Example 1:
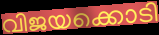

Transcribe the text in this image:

വിജയക്കൊടി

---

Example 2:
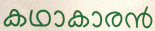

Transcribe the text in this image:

കഥാകാരൻ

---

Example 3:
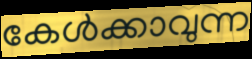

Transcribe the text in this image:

കേൾക്കാവുന്ന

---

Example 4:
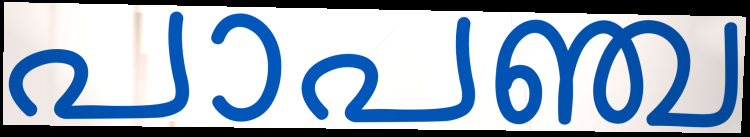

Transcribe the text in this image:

പാപഞ്ച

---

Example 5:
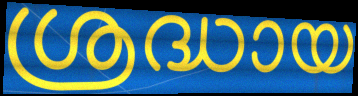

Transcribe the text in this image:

ശ്രദ്ധായ